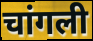
चांगली